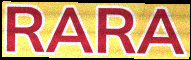
RARA